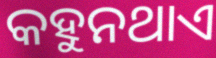
କହୁନଥାଏ